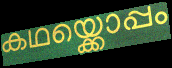
കഥയ്ക്കൊപ്പം